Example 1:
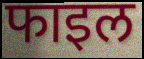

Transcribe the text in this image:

फाइल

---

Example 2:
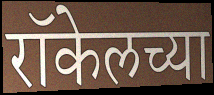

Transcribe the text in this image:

रॉकेलच्या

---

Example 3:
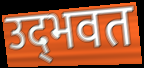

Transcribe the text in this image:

उद्‌भवत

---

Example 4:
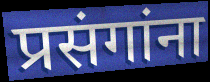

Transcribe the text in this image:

प्रसंगांना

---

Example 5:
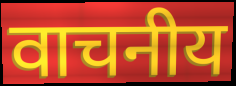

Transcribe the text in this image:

वाचनीय